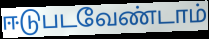
ஈடுபடவேண்டாம்